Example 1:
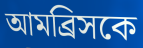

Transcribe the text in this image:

আমব্রিসকে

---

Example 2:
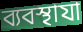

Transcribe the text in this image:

ব্যবস্থাযা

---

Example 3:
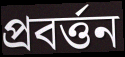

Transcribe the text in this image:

প্রবর্ত্তন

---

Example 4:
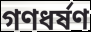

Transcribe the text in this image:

গণধর্ষণ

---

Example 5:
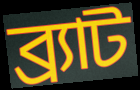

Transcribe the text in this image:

ব্র্যাট